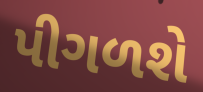
પીગળશે